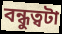
বন্ধুত্বটা